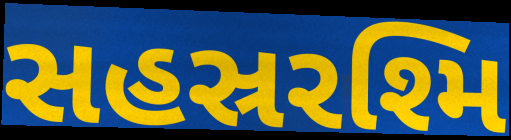
સહસ્રરશ્મિ